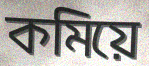
কমিয়ে